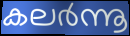
കലർന്നൂ